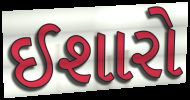
ઈશારો